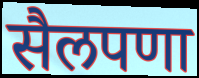
सैलपणा